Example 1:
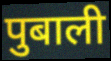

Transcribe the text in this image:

पुबाली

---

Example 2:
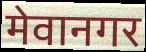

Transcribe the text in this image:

मेवानगर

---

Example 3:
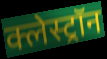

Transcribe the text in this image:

क्लेस्ट्रॉन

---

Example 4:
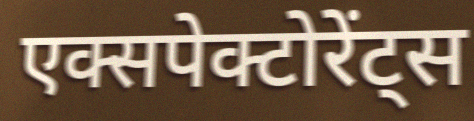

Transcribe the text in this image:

एक्सपेक्टोरेंट्स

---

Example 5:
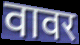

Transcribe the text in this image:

वावर